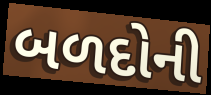
બળદોની